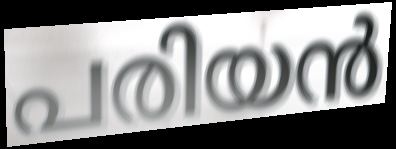
പരിയൻ